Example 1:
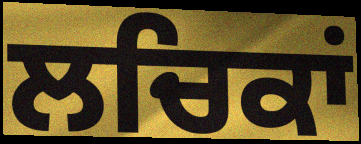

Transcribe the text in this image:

ਲਚਿਕਾਂ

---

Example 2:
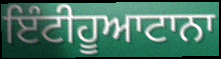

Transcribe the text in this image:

ਇੰਟੀਹੂਆਟਾਨਾ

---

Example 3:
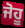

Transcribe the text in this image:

ਜੋਹੂ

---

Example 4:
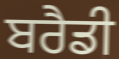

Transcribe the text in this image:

ਬਰੈਡੀ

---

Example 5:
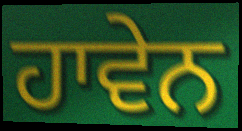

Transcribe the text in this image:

ਹਾਵੇਨ